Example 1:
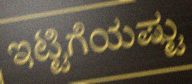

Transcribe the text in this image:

ಇಟ್ಟಿಗೆಯಷ್ಟು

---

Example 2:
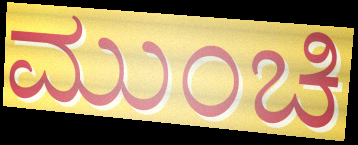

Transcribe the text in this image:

ಮುಂಚಿ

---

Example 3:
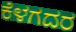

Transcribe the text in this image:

ಕೆಳಗದರ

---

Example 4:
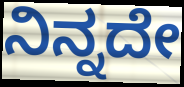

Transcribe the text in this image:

ನಿನ್ನದೇ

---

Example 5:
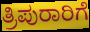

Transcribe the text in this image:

ತ್ರಿಪುರಾರಿಗೆ